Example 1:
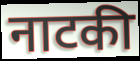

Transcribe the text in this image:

नाटकी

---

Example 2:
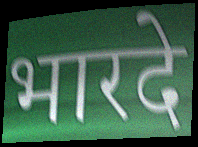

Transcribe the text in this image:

भारदे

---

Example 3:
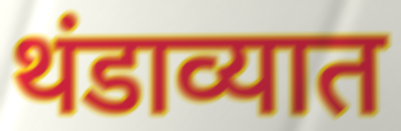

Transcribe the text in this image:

थंडाव्यात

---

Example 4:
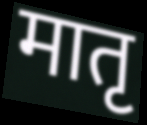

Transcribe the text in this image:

मातृ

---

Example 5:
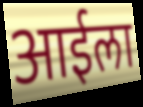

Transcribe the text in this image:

आईला